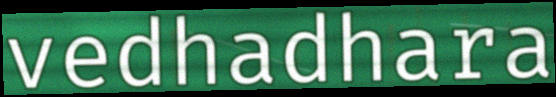
vedhadhara